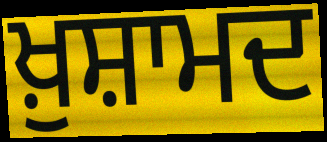
ਖ਼ੁਸ਼ਾਮਦ